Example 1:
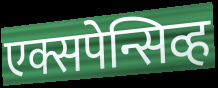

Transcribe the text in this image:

एक्सपेन्सिव्ह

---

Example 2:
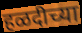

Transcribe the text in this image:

हळदीच्या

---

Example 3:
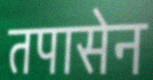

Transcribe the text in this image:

तपासेन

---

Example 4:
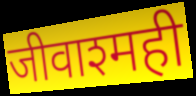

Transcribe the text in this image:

जीवाश्मही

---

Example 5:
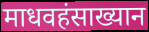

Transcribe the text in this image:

माधवहंसाख्यान